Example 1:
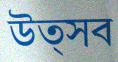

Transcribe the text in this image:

উত্সব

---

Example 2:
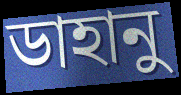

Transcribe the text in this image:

ডাহানু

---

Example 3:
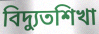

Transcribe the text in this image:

বিদ্যুতশিখা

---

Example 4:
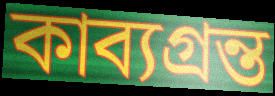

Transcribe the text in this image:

কাব্যগ্রন্ত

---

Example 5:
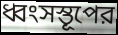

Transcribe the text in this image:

ধ্বংসস্তূপের